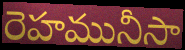
రెహమునీసా